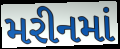
મરીનમાં